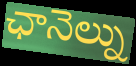
ఛానెల్ను